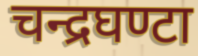
चन्द्रघण्टा